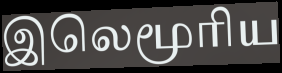
இலெமூரிய